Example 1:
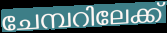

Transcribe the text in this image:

ചേമ്പറിലേക്ക്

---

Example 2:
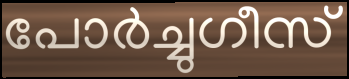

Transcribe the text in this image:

പോർച്ചുഗീസ്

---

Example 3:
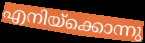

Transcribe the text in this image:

എനിയ്ക്കൊന്നു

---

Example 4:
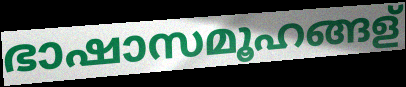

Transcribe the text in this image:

ഭാഷാസമൂഹങ്ങള്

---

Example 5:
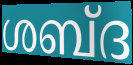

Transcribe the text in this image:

ശബ്ദ